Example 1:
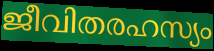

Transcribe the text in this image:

ജീവിതരഹസ്യം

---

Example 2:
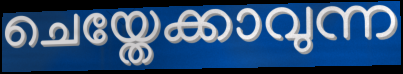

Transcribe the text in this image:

ചെയ്തേക്കാവുന്ന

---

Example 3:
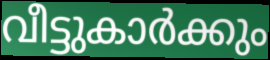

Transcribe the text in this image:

വീട്ടുകാർക്കും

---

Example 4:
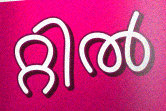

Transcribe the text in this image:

റ്റിൽ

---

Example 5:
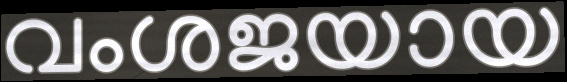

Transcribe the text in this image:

വംശജയായ